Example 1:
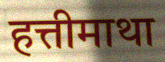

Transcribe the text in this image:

हत्तीमाथा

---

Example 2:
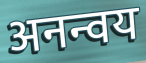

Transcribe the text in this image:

अनन्वय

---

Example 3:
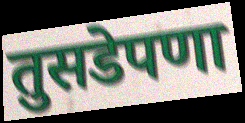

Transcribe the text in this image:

तुसडेपणा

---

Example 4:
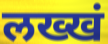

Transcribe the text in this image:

लख्खं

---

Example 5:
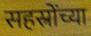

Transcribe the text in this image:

सहस्रोंच्या